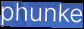
phunke